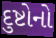
દુષ્ટોનો